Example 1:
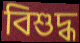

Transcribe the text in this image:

বিশুদ্ধ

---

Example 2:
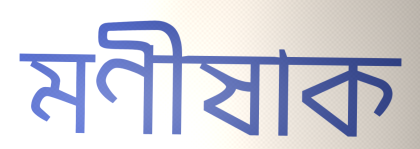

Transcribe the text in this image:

মণীষাক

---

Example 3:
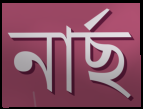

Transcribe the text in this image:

নাৰ্ছ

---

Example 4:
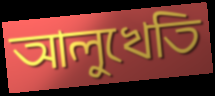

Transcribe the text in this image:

আলুখেতি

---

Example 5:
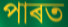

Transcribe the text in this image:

পাৰত